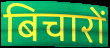
बिचारों